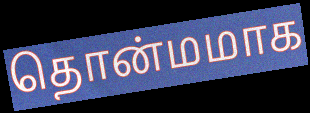
தொன்மமாக